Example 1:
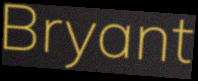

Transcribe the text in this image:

Bryant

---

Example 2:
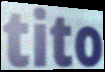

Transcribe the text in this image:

tito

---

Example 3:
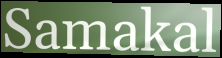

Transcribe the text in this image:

Samakal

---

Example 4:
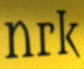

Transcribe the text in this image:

nrk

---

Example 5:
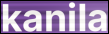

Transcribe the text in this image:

kanila